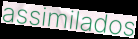
assimilados